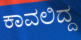
ಕಾವಲಿದ್ದ